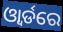
ଓ୍ବାର୍ଡରେ